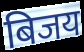
बिजय